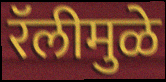
रॅलीमुळे